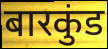
बारकुंड